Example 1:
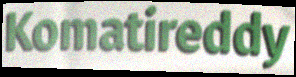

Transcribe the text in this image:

Komatireddy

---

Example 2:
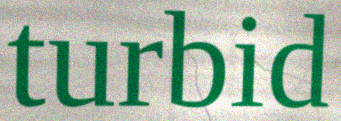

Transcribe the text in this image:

turbid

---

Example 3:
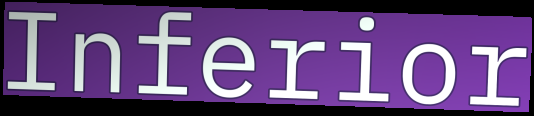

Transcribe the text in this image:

Inferior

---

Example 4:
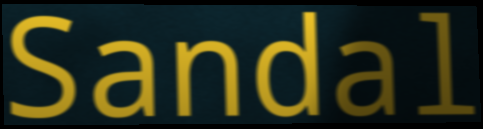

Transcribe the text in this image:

Sandal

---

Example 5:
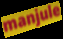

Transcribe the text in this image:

manjule